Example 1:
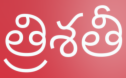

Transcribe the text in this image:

త్రిశతీ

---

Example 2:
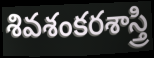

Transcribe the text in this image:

శివశంకరశాస్త్రి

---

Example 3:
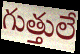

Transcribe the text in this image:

గుత్తులే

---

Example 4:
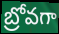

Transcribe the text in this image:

బ్రోవగా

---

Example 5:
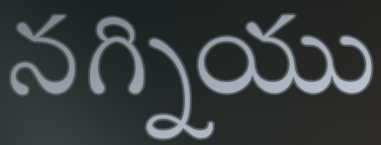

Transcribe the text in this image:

నగ్నియు